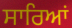
ਸਾਰਿਆਂ